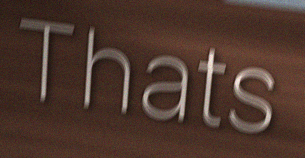
Thats